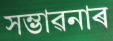
সম্ভাৱনাৰ